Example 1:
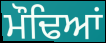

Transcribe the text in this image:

ਮੌਢਿਆਂ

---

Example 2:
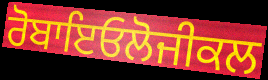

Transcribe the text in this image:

ਰੋਬਾਇਓਲੋਜੀਕਲ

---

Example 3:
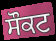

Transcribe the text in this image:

ਸੌਕਟ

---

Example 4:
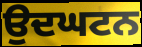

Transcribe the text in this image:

ਉਦਘਟਨ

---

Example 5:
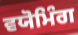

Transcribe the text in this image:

ਵਯੋਮਿੰਗ